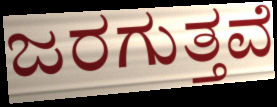
ಜರಗುತ್ತವೆ